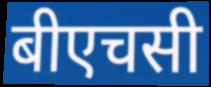
बीएचसी